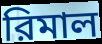
রিমাল